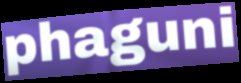
phaguni